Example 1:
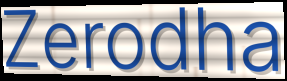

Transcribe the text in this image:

Zerodha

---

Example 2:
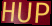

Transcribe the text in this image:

HUP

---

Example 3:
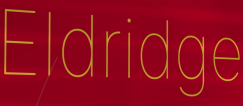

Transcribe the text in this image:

Eldridge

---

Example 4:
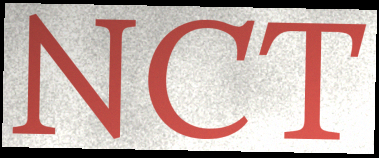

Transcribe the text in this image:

NCT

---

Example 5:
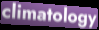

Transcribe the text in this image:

climatology